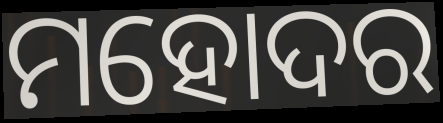
ମହୋଦର